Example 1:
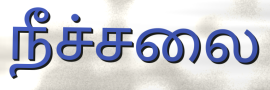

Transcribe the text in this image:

நீச்சலை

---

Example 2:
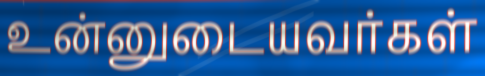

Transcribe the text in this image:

உன்னுடையவர்கள்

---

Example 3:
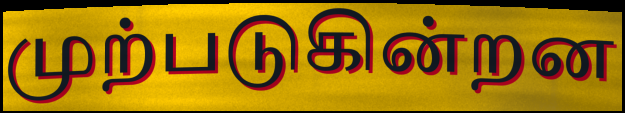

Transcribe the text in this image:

முற்படுகின்றன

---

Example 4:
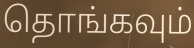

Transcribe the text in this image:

தொங்கவும்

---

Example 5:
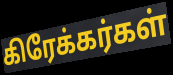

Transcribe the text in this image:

கிரேக்கர்கள்